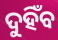
ଦୁହିଁବ